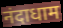
नंदाधाम